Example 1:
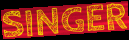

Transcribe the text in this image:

SINGER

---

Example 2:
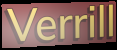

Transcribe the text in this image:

Verrill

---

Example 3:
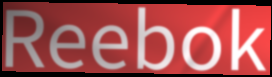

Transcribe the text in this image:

Reebok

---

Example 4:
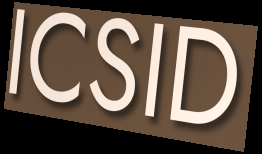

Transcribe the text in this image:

ICSID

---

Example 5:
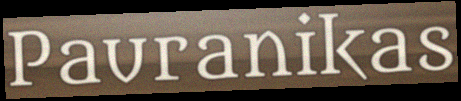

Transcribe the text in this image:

Pauranikas